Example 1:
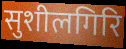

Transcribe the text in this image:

सुशीलगिरि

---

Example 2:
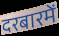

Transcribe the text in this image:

दरबारमें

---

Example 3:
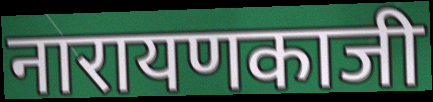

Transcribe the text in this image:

नारायणकाजी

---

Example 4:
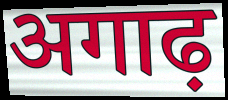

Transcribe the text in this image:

अगाढ़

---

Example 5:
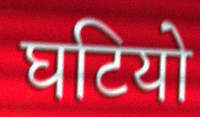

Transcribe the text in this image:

घटियो